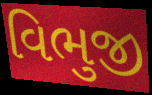
વિભુજી